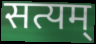
सत्यम्